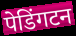
पेडिंगटन